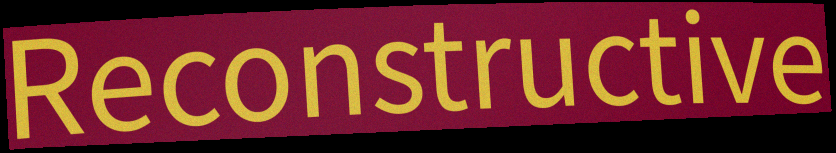
Reconstructive